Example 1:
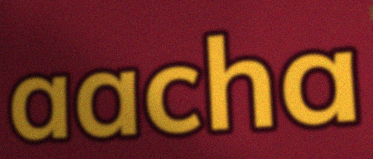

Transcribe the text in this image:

aacha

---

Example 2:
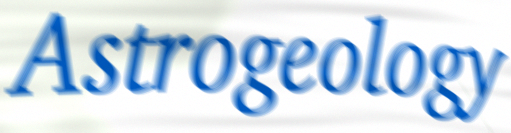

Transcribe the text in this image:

Astrogeology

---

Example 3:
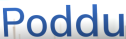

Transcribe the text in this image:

Poddu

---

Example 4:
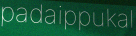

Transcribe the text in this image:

padaippukal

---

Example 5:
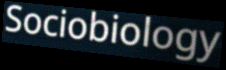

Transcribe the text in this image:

Sociobiology